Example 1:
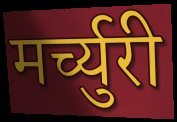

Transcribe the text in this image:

मर्च्युरी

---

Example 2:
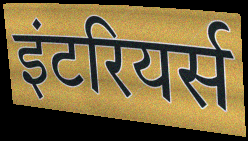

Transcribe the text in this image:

इंटरियर्स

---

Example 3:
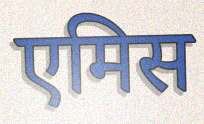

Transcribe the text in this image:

एमिस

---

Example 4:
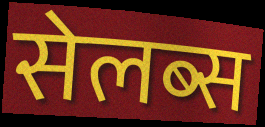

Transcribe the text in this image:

सेलब्स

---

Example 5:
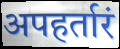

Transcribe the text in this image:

अपहर्तारं